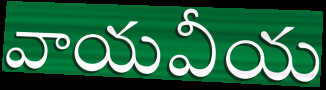
వాయవీయ